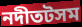
নদীতটসম